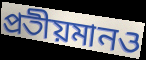
প্রতীয়মানও